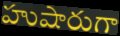
హుషారుగా